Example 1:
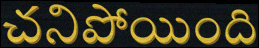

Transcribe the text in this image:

చనిపోయింది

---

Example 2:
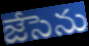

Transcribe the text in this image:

జేసెను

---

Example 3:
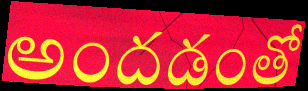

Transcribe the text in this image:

అందడంతో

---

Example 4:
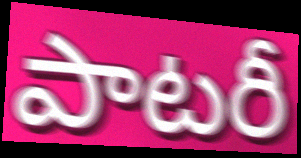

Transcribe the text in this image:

పాటరీ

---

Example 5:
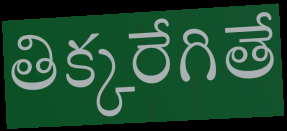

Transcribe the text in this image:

తిక్కరేగితే